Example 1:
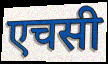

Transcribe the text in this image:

एचसी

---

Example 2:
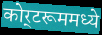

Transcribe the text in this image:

कोर्टरूममध्ये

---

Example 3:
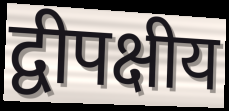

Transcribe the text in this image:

द्वीपक्षीय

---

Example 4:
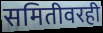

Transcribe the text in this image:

समितीवरही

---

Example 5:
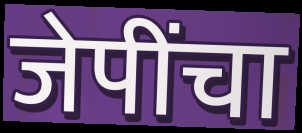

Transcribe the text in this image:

जेपींचा